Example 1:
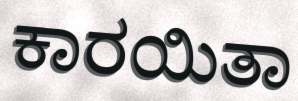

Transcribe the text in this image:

ಕಾರಯಿತಾ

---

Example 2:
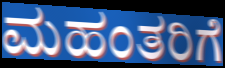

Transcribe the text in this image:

ಮಹಂತರಿಗೆ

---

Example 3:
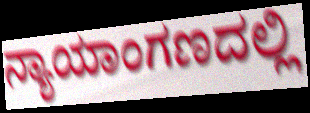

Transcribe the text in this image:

ನ್ಯಾಯಾಂಗಣದಲ್ಲಿ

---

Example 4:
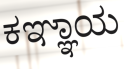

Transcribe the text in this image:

ಕಞ್ಞಾಯ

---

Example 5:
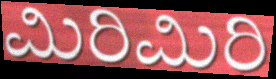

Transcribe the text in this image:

ಮಿರಿಮಿರಿ